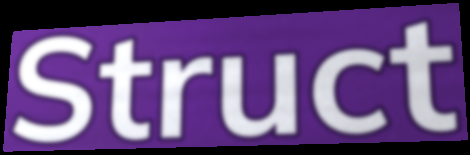
Struct